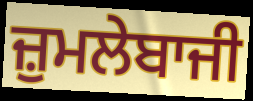
ਜ਼ੁਮਲੇਬਾਜੀ